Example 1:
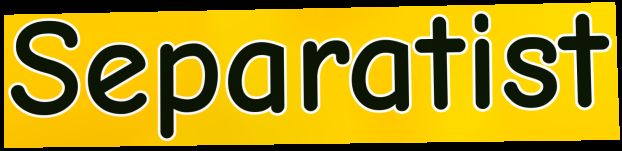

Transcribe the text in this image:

Separatist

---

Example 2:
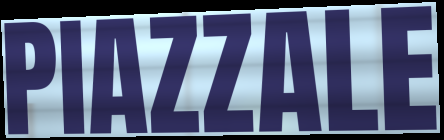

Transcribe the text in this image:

PIAZZALE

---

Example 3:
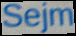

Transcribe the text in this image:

Sejm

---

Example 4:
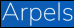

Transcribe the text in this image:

Arpels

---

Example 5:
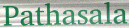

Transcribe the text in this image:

Pathasala